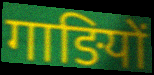
गाङियों